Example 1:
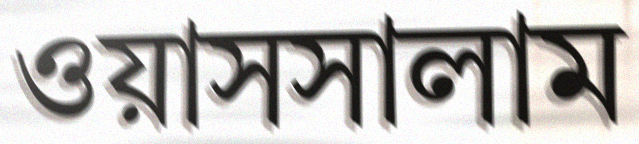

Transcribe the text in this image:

ওয়াসসালাম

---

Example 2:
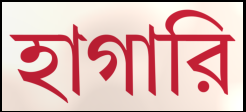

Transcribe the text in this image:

হাগারি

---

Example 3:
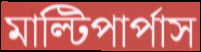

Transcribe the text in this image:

মাল্টিপার্পাস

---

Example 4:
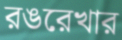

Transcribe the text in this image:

রঙরেখার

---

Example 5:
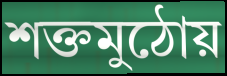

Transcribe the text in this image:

শক্তমুঠোয়